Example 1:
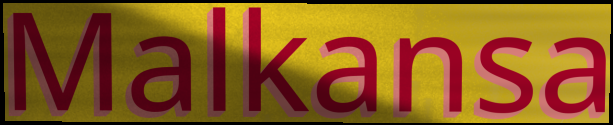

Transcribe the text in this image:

Malkansa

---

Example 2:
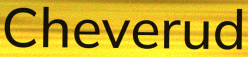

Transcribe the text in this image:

Cheverud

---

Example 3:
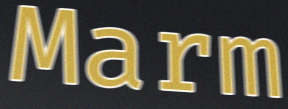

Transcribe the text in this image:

Marm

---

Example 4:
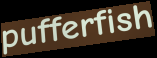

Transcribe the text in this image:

pufferfish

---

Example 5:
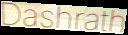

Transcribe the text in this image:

Dashrath